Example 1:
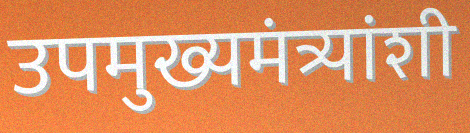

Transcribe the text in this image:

उपमुख्यमंत्र्यांशी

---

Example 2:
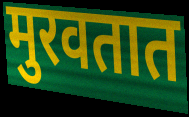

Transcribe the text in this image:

मुरवतात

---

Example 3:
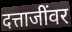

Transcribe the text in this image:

दत्ताजींवर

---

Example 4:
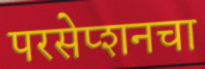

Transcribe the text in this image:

परसेप्शनचा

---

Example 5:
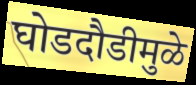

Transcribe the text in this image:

घोडदौडीमुळे